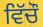
ਵਿੱਚੌ